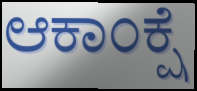
ಆಕಾಂಕ್ಷೆ